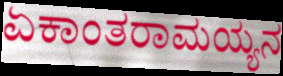
ಏಕಾಂತರಾಮಯ್ಯನ